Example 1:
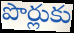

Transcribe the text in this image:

పొర్లుకు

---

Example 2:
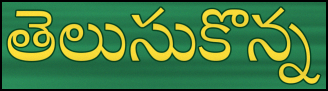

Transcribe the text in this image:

తెలుసుకొన్న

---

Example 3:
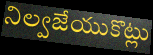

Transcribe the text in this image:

నిల్వజేయుకొట్లు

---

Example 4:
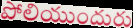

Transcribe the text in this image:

పోలియుందురు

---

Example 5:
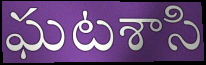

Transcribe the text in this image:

ఘటశాసి